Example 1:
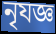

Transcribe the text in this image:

নৃযজ্ঞ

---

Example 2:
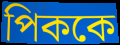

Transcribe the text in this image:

পিককে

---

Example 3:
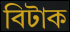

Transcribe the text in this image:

বিটাক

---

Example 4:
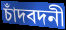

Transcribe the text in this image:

চাঁদবদনী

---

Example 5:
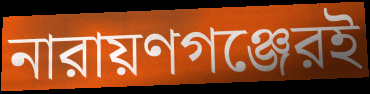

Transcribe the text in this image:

নারায়ণগঞ্জেরই